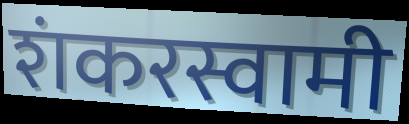
शंकरस्वामी